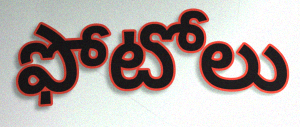
ఫోటోలు